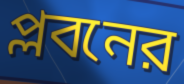
প্লবনের